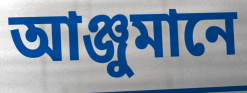
আঞ্জুমানে